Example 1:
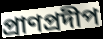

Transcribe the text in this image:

প্রাণপ্রদীপ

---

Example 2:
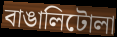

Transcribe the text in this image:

বাঙালিটোলা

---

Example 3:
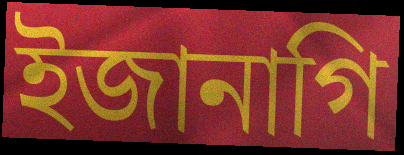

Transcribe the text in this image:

ইজানাগি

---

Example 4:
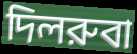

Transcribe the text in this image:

দিলরুবা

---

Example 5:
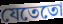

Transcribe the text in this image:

যেতেতো